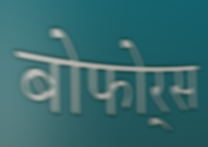
बोफोर्स